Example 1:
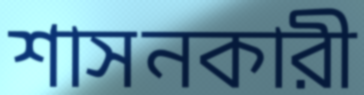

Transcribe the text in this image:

শাসনকারী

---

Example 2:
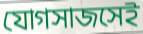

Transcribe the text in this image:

যোগসাজসেই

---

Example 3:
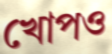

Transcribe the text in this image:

খোপও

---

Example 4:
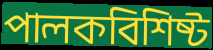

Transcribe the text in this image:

পালকবিশিষ্ট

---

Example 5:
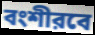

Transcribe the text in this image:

বংশীরবে